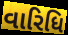
વારિધિ